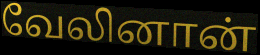
வேலினான்